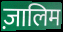
ज़ालिम